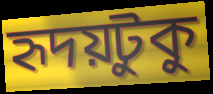
হৃদয়টুকু